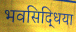
भवसिद्धिया